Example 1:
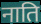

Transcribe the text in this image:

नाति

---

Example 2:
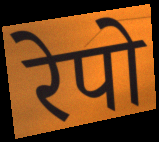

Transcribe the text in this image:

रेपो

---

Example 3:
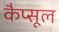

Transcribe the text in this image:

कैप्सूल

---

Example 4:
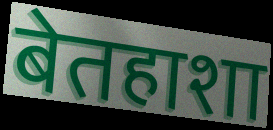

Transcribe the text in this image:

बेतहाशा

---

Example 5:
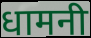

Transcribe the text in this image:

धामनी